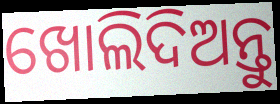
ଖୋଲିଦିଅନ୍ତୁ